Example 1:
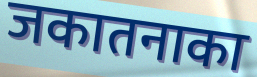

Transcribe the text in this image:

जकातनाका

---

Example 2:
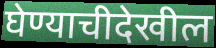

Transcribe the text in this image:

घेण्याचीदेखील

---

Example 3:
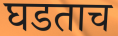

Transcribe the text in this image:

घडताच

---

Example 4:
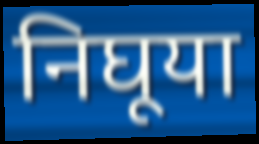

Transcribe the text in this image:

निघूया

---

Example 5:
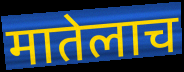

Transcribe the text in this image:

मातेलाच